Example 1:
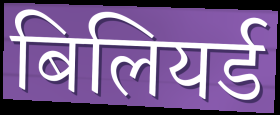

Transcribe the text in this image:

बिलियर्ड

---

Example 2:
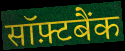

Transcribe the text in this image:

सॉफ़्टबैंक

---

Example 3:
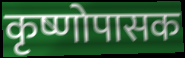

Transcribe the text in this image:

कृष्णोपासक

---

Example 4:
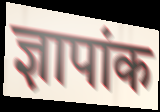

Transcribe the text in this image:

ज्ञापांक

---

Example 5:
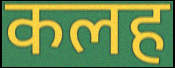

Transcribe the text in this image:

कलह